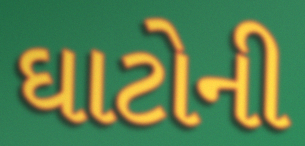
ઘાટોની